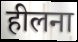
हीलना